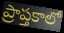
ప్రాప్తకాలో